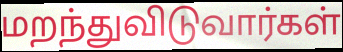
மறந்துவிடுவார்கள்